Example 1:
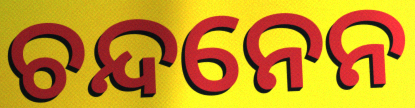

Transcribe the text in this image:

ଚନ୍ଦନେନ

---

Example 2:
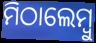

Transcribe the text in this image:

ମିଠାଲେମ୍ବୁ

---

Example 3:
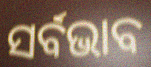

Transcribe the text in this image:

ସର୍ବଭାବ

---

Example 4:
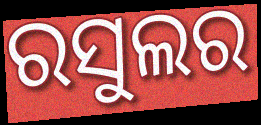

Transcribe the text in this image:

ରସୁଲର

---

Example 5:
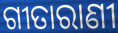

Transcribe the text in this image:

ଗୀତାରାଣୀ